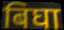
बिघा